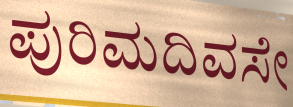
ಪುರಿಮದಿವಸೇ